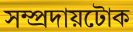
সম্প্ৰদায়টোক